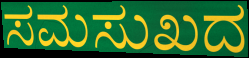
ಸಮಸುಖದ